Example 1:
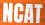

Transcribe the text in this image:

NCAT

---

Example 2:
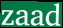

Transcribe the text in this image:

zaad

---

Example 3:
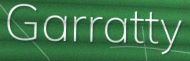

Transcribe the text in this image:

Garratty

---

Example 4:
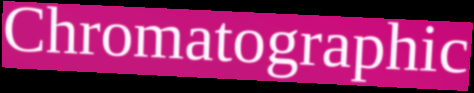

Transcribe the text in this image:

Chromatographic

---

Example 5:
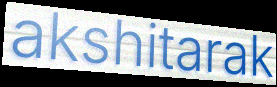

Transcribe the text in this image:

akshitarak